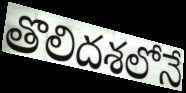
తొలిదశలోనే